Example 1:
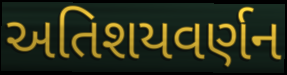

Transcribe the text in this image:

અતિશયવર્ણન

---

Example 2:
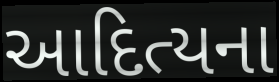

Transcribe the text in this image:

આદિત્યના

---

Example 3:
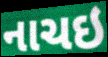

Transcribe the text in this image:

નાચઇ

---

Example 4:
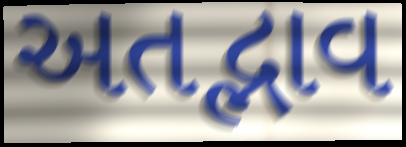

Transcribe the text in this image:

અતદ્ભાવ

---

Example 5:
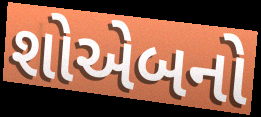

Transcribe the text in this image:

શોએબનો